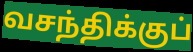
வசந்திக்குப்